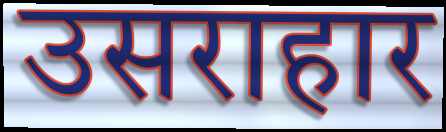
उसराहार